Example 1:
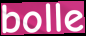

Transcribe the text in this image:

bolle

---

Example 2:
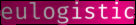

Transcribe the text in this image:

eulogistic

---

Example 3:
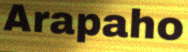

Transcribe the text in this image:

Arapaho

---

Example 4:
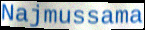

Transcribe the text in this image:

Najmussama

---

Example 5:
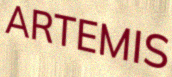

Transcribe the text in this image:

ARTEMIS